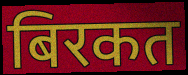
बिरकत